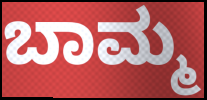
ಬಾಮ್ಮ